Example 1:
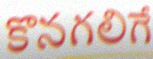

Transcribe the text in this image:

కొనగలిగే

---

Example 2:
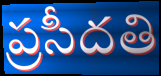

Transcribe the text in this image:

ప్రసీదతి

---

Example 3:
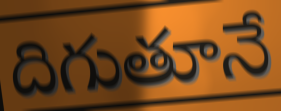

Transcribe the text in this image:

దిగుతూనే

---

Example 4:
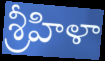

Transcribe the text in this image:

శ్రీహిళా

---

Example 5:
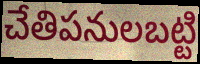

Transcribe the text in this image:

చేతిపనులబట్టి